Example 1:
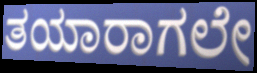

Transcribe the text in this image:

ತಯಾರಾಗಲೇ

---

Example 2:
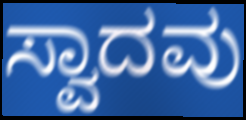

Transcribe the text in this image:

ಸ್ವಾದವು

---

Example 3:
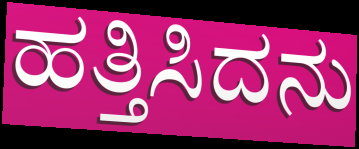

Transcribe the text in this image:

ಹತ್ತಿಸಿದನು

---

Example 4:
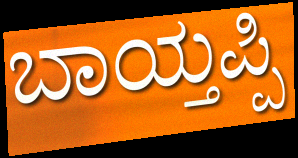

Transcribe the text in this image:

ಬಾಯ್ತಪ್ಪಿ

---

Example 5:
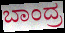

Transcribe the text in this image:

ಬಾಂದ್ರ